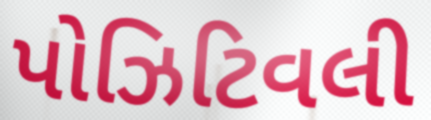
પોઝિટિવલી